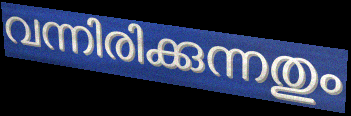
വന്നിരിക്കുന്നതും